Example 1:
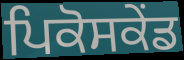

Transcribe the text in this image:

ਪਿਕੋਸਕੇਂਡ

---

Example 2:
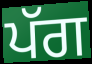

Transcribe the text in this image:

ਪੱਗ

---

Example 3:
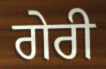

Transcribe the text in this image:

ਗੇਰੀ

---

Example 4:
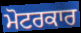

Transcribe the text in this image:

ਮੋਟਰਕਾਰ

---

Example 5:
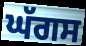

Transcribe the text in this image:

ਘੱਗਸ